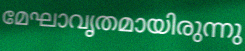
മേഘാവൃതമായിരുന്നു